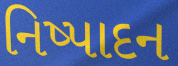
નિષ્પાદન